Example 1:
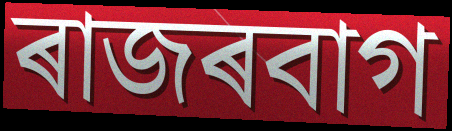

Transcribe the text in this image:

ৰাজৰবাগ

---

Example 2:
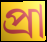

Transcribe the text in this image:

প্ৰা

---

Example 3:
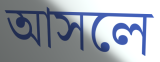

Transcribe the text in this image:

আসলে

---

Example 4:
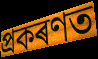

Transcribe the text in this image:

প্ৰকৰণত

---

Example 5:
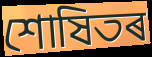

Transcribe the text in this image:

শোষিতৰ